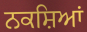
ਨਕਸ਼ਿਆਂ